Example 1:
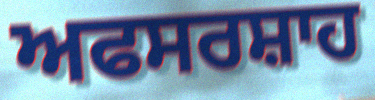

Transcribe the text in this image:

ਅਫਸਰਸ਼ਾਹ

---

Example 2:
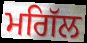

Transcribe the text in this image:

ਮਗਿੱਲ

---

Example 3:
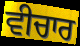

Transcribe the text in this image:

ਵੀਚਾਰ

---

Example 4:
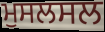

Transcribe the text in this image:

ਮੁਸਲਸਲ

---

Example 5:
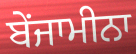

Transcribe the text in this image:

ਬੇਂਜਾਮੀਨਾ